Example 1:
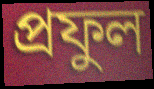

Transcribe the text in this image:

প্রফুল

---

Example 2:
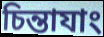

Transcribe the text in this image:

চিন্তাযাং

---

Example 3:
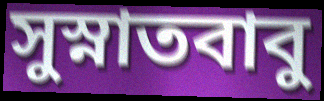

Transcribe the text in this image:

সুস্নাতবাবু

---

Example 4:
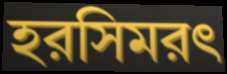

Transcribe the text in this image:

হরসিমরৎ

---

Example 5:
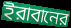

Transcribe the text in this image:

ইরাবানের